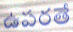
ఉపరతే